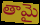
తామై